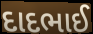
દાદભાઈ